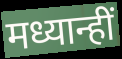
मध्यान्हीं